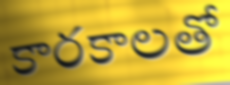
కారకాలతో